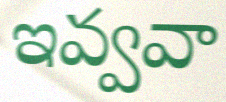
ఇవ్వవా